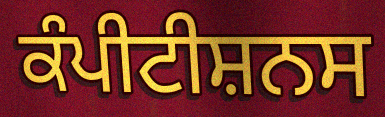
ਕੰਪੀਟੀਸ਼ਨਸ